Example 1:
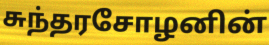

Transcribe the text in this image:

சுந்தரசோழனின்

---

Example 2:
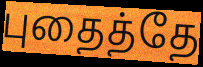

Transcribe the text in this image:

புதைத்தே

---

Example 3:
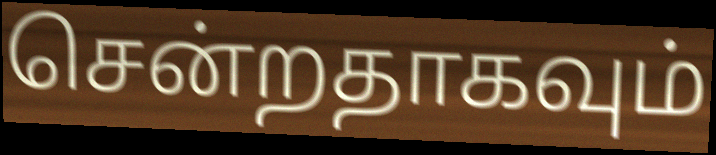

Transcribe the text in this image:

சென்றதாகவும்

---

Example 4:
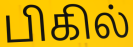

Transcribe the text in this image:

பிகில்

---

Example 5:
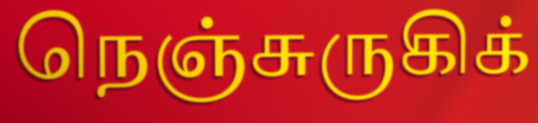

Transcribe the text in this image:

நெஞ்சுருகிக்